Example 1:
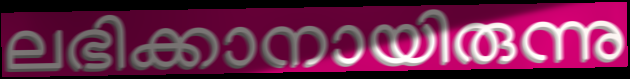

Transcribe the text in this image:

ലഭിക്കാനായിരുന്നു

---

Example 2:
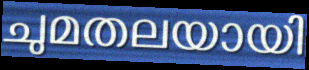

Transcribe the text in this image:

ചുമതലയായി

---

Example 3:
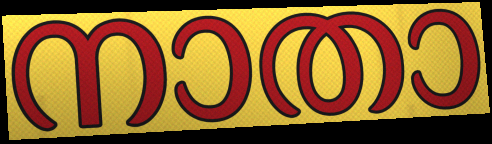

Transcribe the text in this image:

നാതാ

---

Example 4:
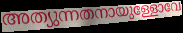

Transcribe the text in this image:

അത്യുന്നതനായുള്ളോവേ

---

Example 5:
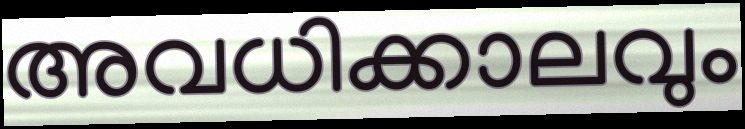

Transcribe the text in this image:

അവധിക്കാലവും